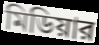
মিডিয়ার